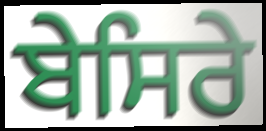
ਬੇਸਿਰੇ